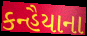
કન્હૈયાના